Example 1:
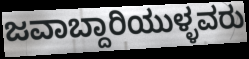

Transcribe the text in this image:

ಜವಾಬ್ದಾರಿಯುಳ್ಳವರು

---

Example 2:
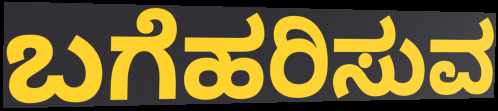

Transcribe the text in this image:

ಬಗೆಹರಿಸುವ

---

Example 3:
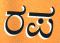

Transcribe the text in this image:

ರಪ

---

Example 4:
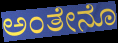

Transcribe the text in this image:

ಅಂತೇನೊ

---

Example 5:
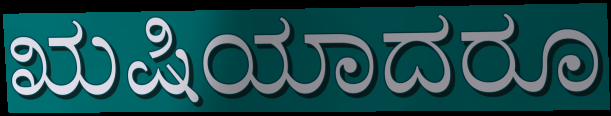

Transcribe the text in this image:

ಋಷಿಯಾದರೂ